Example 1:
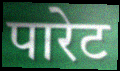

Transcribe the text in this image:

पारेट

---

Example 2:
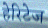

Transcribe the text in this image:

हेरिटेज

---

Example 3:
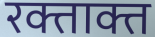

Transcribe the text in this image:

रक्ताक्त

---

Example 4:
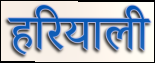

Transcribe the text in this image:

हरियाली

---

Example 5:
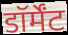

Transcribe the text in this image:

डॉर्मेंट